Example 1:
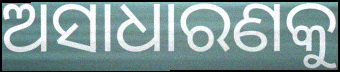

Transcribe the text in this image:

ଅସାଧାରଣକୁ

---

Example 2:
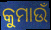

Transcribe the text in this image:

କୁମାଉଁ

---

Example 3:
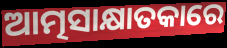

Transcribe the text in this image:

ଆତ୍ମସାକ୍ଷାତକାରେ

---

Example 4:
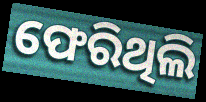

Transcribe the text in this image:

ଫେରିଥିଲି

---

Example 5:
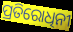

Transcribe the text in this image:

ପ୍ରତିରୋଧିନୀ